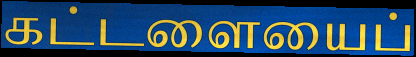
கட்டளையைப்